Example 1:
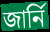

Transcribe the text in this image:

জার্নি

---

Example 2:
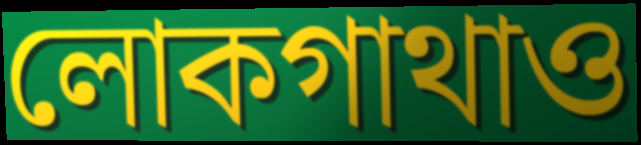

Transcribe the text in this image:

লোকগাথাও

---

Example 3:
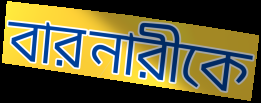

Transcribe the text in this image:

বারনারীকে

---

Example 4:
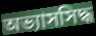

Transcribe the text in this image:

অভ্যাসসিদ্ধ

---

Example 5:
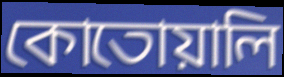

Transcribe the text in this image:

কোতোয়ালি